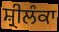
ਸ਼੍ਰ੍ਰੀਲੰਕਾ